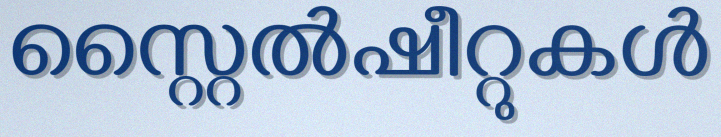
സ്റ്റൈൽഷീറ്റുകൾ